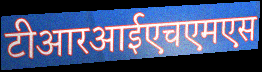
टीआरआईएचएमएस